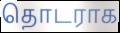
தொடராக